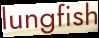
lungfish